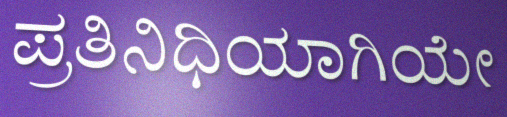
ಪ್ರತಿನಿಧಿಯಾಗಿಯೇ